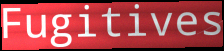
Fugitives